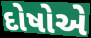
દોષોએ